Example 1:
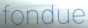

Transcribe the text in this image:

fondue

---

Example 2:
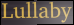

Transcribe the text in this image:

Lullaby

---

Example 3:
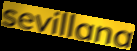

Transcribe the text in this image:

sevillana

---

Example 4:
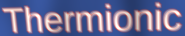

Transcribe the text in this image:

Thermionic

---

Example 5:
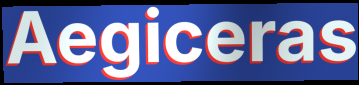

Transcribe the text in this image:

Aegiceras